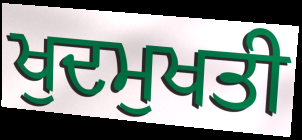
ਖੁਦਮੁਖਤੀ